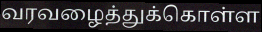
வரவழைத்துக்கொள்ள